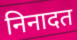
निनादत